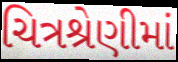
ચિત્રશ્રેણીમાં